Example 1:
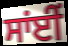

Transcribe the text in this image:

ਸਾਂਈਂ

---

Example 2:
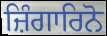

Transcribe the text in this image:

ਜ਼ਿੰਗਾਰਿਨੋ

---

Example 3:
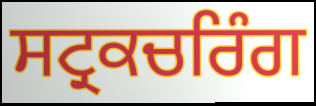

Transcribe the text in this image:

ਸਟ੍ਰਕਚਰਿੰਗ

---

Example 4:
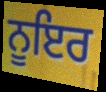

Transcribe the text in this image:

ਨੂਇਰ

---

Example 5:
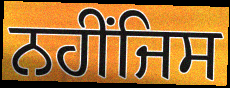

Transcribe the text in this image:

ਨਹੀਂਜਿਸ